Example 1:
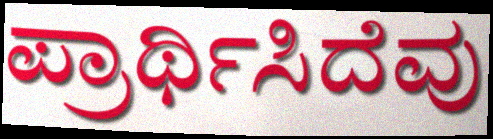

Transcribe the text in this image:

ಪ್ರಾರ್ಥಿಸಿದೆವು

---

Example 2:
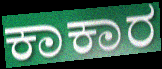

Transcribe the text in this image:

ಕಾಕಾರ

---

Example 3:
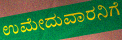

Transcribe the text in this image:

ಉಮೇದುವಾರನಿಗೆ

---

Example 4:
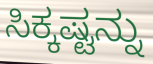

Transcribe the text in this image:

ಸಿಕ್ಕಷ್ಟನ್ನು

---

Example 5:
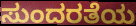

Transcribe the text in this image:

ಸುಂದರತೆಯ